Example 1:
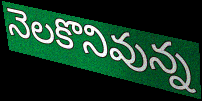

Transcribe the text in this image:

నెలకొనివున్న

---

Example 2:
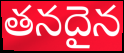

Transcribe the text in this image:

తనదైన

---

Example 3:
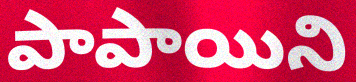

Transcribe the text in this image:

పాపాయిని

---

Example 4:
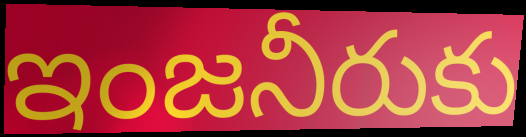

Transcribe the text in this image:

ఇంజనీరుకు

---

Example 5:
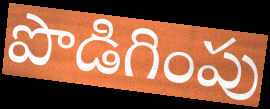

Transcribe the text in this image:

పొడిగింపు